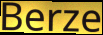
Berze